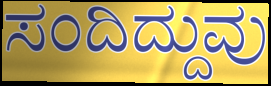
ಸಂದಿದ್ದುವು